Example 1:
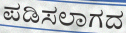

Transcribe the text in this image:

ಪಡಿಸಲಾಗದ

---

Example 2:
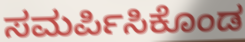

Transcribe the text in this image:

ಸಮರ್ಪಿಸಿಕೊಂಡ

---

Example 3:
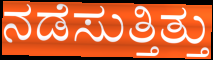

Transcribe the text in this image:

ನಡೆಸುತ್ತಿತ್ತು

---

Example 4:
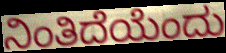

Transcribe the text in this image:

ನಿಂತಿದೆಯೆಂದು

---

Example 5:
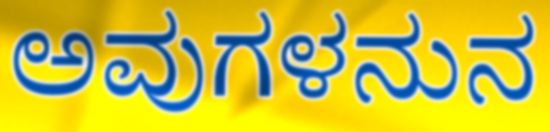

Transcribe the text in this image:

ಅವುಗಳನುನ